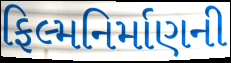
ફિલ્મનિર્માણની